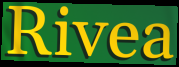
Rivea